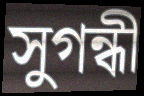
সুগন্ধী